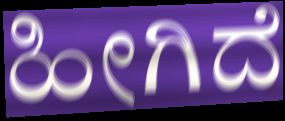
ಹೀಗಿದೆ